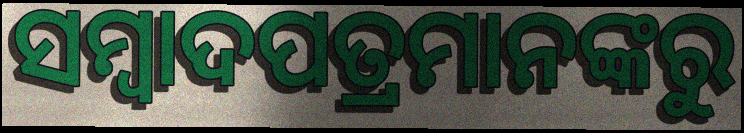
ସମ୍ୱାଦପତ୍ରମାନଙ୍କରୁ